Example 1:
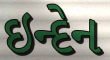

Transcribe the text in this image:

ઇન્દેન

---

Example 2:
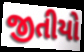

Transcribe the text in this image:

જીતીયો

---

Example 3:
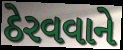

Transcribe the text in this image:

ઠેરવવાને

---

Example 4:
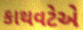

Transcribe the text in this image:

કાથવટેએ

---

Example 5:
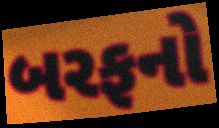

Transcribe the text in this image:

બરફનો